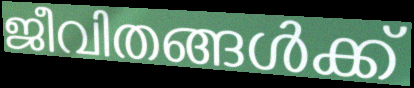
ജീവിതങ്ങൾക്ക്